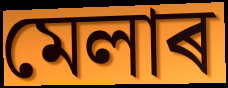
মেলাৰ